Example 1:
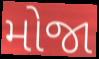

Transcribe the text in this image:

મોજા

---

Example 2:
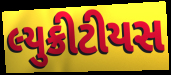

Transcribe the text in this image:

લ્યુક્રીટીયસ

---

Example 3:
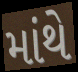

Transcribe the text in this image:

માંથે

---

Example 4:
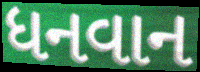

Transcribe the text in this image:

ધનવાન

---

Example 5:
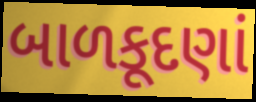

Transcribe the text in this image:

બાળકૂદણાં